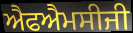
ਐਫਐਮਸੀਜੀ